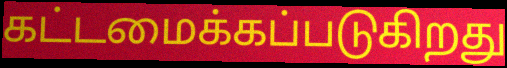
கட்டமைக்கப்படுகிறது